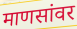
माणसांवर